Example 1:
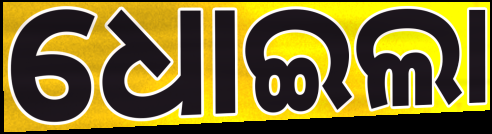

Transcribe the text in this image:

ଧୋଇଲା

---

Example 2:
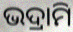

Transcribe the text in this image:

ଭଦ୍ରାମି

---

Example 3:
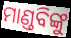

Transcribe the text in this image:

ମାଣ୍ଡବିଙ୍କୁ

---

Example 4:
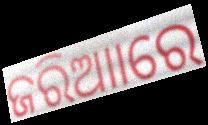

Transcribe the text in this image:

ଜରିଆାରେ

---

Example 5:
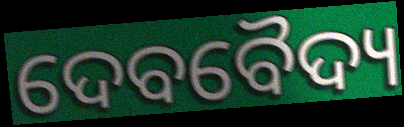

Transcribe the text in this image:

ଦେବବୈଦ୍ୟ